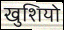
खुशियो